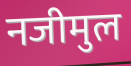
नजीमुल